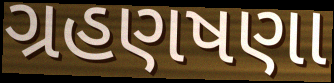
ગ્રહણષણા